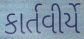
કાર્તવીર્યે